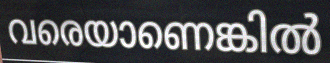
വരെയാണെങ്കിൽ